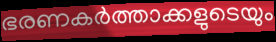
ഭരണകർത്താക്കളുടെയും